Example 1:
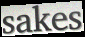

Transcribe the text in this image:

sakes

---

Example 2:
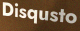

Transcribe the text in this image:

Disqusto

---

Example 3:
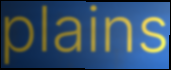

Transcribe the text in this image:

plains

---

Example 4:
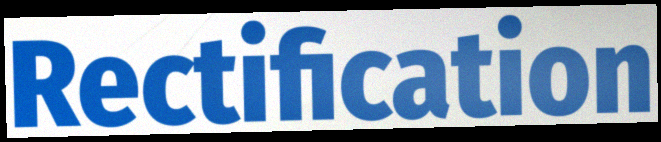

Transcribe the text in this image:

Rectification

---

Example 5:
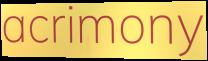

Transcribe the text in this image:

acrimony